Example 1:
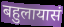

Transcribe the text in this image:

बहुलायासं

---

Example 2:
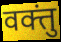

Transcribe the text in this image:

वक्तुं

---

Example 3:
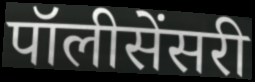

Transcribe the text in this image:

पॉलीसेंसरी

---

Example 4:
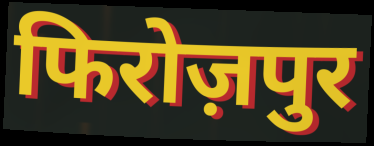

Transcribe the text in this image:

फिरोज़पुर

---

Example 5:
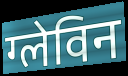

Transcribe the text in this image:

ग्लेविन